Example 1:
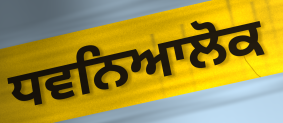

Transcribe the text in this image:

ਧਵਨਿਆਲੋਕ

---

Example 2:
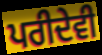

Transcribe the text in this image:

ਪਰੀਦੇਵੀ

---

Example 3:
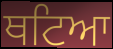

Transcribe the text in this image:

ਥਟਿਆ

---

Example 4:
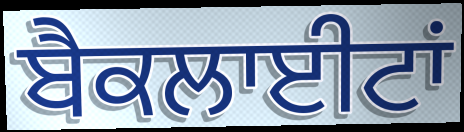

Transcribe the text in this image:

ਬੈਕਲਾਈਟਾਂ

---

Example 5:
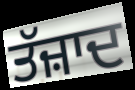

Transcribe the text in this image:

ਤੱਜ਼ਾਦ